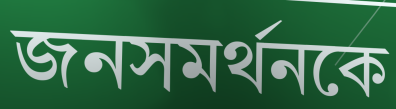
জনসমর্থনকে